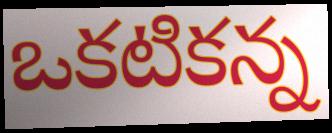
ఒకటికన్న